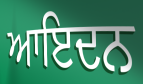
ਆਇਦਨ